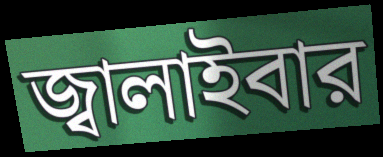
জ্বালাইবার